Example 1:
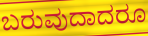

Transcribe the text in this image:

ಬರುವುದಾದರೂ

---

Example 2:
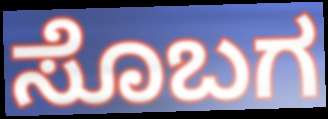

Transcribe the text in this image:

ಸೊಬಗ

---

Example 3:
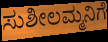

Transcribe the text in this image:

ಸುಶೀಲಮ್ಮನಿಗೆ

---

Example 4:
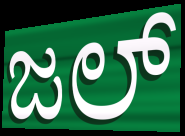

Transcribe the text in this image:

ಜಲ್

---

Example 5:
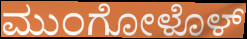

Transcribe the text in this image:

ಮುಂಗೋಳೊಳ್